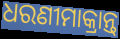
ଧରଣୀମାକ୍ରାନ୍ତ୍